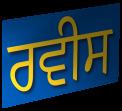
ਰਵੀਸ